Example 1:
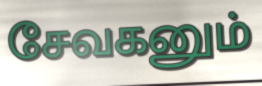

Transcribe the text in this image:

சேவகனும்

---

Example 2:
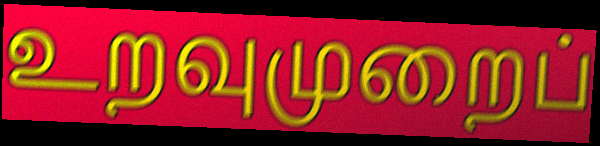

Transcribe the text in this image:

உறவுமுறைப்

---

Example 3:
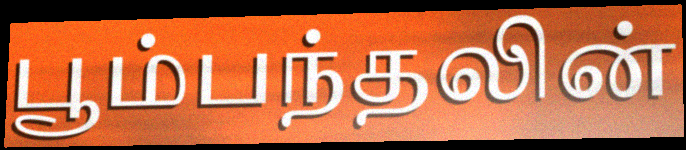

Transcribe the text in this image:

பூம்பந்தலின்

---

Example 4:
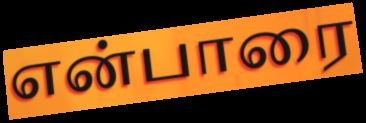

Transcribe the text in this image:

என்பாரை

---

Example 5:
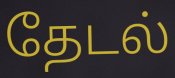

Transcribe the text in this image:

தேடல்